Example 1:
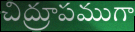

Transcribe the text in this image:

చిద్రూపముగా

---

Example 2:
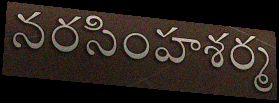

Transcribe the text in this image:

నరసింహశర్మ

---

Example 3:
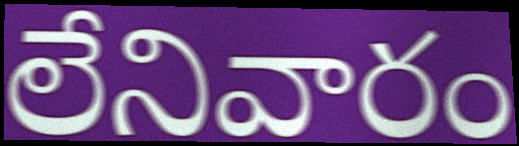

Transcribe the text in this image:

లేనివారం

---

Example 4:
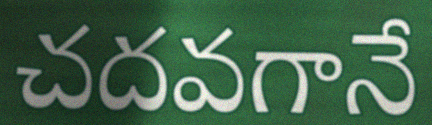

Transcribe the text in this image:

చదవగానే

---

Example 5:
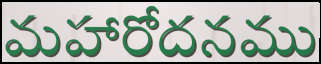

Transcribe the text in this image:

మహారోదనము